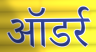
ऑडर्र